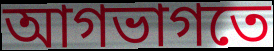
আগভাগতে